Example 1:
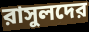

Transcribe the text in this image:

রাসুলদের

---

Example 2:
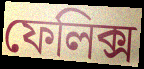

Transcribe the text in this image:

ফেলিক্স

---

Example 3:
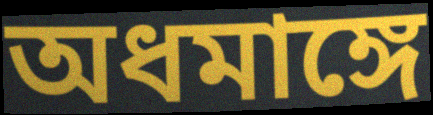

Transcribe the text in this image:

অধমাঙ্গে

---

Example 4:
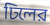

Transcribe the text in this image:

ঢিলের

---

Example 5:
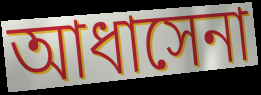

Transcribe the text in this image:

আধাসেনা